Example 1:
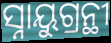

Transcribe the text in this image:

ସ୍ନାୟୁଗ୍ରନ୍ଥୀ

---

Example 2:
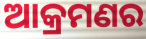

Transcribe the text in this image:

ଆକ୍ରମଣର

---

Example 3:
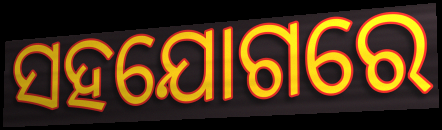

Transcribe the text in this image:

ସହଯୋଗରେ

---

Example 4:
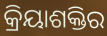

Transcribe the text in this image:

କ୍ରିୟାଶକ୍ତିର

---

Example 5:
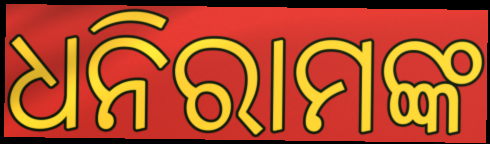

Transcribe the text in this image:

ଧନିରାମଙ୍କ